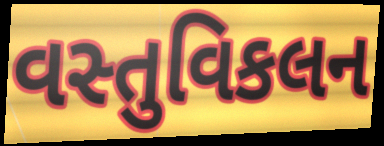
વસ્તુવિકલન